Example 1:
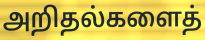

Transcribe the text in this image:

அறிதல்களைத்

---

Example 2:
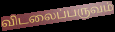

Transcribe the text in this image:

விடலைப்பருவம்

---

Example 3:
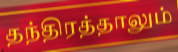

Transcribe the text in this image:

தந்திரத்தாலும்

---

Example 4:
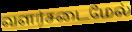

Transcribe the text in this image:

வளர்சடைமேல்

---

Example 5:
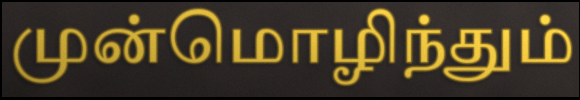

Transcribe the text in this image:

முன்மொழிந்தும்